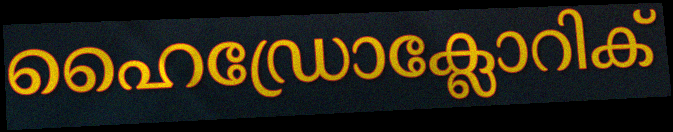
ഹൈഡ്രോക്ലോറിക്